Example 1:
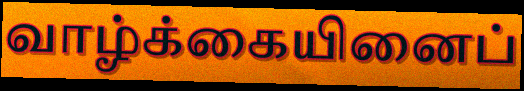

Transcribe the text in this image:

வாழ்க்கையினைப்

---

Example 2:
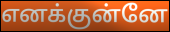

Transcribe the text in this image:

எனக்குன்னே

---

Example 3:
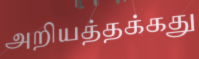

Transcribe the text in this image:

அறியத்தக்கது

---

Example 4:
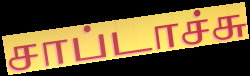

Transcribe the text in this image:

சாப்டாச்சு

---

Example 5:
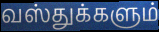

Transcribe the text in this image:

வஸ்துக்களும்